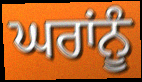
ਘਰਾਂਨੂੰ